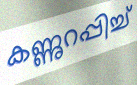
കണ്ണുറപ്പിച്ച്